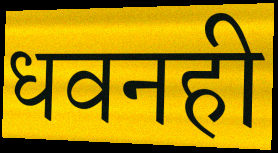
धवनही